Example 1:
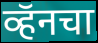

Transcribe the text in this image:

व्हॅनचा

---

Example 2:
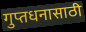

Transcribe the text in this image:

गुप्तधनासाठी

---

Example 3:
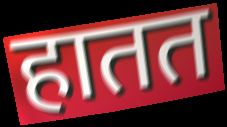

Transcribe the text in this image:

हातत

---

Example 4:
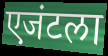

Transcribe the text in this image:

एजंटला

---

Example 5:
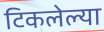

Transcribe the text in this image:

टिकलेल्या